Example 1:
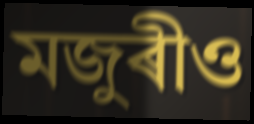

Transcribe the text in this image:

মজুৰীও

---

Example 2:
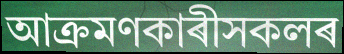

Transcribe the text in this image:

আক্ৰমণকাৰীসকলৰ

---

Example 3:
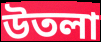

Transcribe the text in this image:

উতলা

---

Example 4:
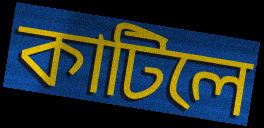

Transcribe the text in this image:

কাটিলে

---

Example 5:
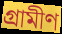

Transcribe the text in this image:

গ্ৰামীণ